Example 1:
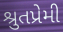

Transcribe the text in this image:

શ્રુતપ્રેમી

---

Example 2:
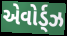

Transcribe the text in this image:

એવોર્ડ્ઝ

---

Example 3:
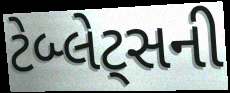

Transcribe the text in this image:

ટેબ્લેટ્સની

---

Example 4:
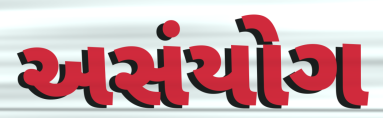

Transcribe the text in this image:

અસંયોગ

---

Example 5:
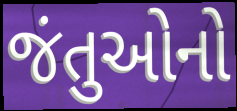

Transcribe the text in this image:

જંતુઓનો